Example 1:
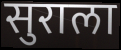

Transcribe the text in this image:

सुराला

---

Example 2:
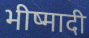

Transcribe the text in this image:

भीष्मादी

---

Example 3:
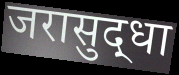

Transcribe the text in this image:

जरासुद्धा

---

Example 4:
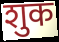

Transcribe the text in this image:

शुक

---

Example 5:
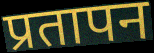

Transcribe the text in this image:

प्रतापन